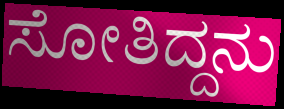
ಸೋತಿದ್ದನು